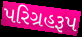
પરિગ્રહરૂપ